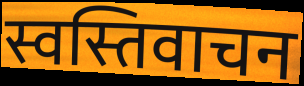
स्वस्तिवाचन